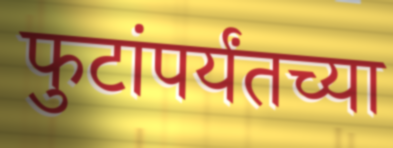
फुटांपर्यंतच्या